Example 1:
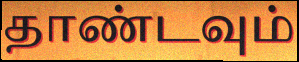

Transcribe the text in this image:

தாண்டவும்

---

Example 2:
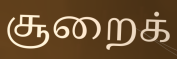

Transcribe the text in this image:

சூறைக்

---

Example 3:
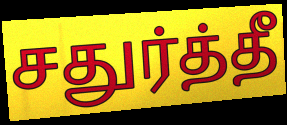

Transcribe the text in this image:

சதுர்த்தீ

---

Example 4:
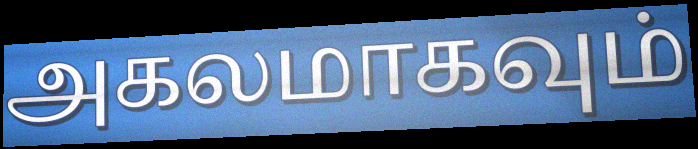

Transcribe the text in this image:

அகலமாகவும்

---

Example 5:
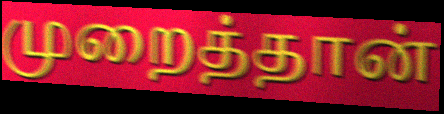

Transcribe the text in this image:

முறைத்தான்